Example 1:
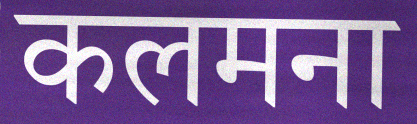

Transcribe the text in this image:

कलमना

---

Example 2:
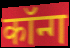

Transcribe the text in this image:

कॉन्ग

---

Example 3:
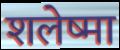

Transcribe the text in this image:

शलेष्मा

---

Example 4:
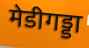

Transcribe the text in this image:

मेडीगड्डा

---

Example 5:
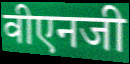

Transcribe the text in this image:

वीएनजी